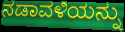
ನಡಾವಳಿಯನ್ನು